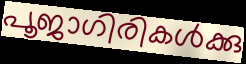
പൂജാഗിരികൾക്കു